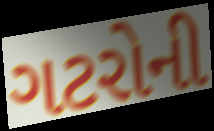
ગટરોની